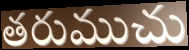
తరుముచు